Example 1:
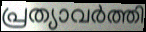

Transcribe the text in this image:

പ്രത്യാവർത്തി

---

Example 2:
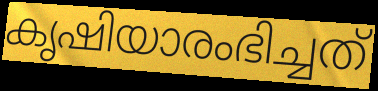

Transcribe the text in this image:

കൃഷിയാരംഭിച്ചത്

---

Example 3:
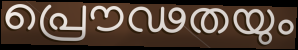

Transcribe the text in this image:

പ്രൌഢതയും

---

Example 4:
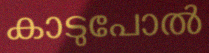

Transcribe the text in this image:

കാടുപോൽ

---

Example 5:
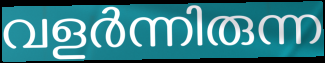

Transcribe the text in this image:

വളർന്നിരുന്ന